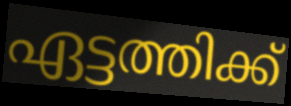
ഏട്ടത്തിക്ക്